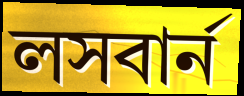
লসবার্ন